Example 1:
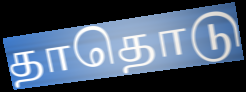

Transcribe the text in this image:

தாதொடு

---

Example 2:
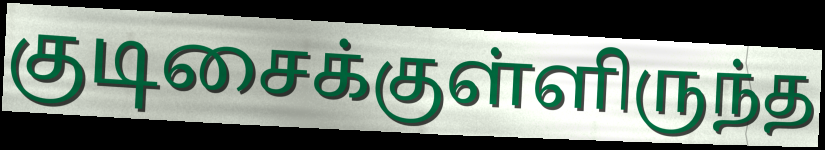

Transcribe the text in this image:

குடிசைக்குள்ளிருந்த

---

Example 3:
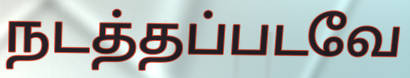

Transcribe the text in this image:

நடத்தப்படவே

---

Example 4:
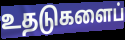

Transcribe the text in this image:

உதடுகளைப்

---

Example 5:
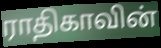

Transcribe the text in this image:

ராதிகாவின்